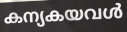
കന്യകയവൾ